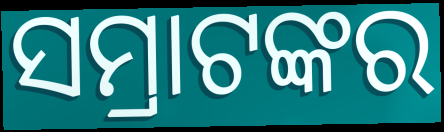
ସମ୍ରାଟଙ୍କର